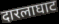
दारलाघाट